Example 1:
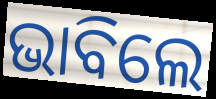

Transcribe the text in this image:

ଭାବିଲେ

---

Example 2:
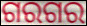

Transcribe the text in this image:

ଗରଗର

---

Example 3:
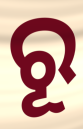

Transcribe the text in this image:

ରୂ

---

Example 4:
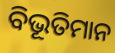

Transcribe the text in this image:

ବିଭୂତିମାନ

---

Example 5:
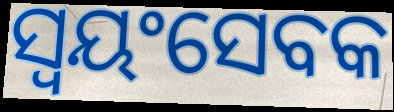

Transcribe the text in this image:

ସ୍ୱୟଂସେବକ